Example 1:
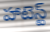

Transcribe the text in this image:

హాటెస్ట్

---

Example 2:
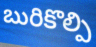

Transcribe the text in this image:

బురికొల్పి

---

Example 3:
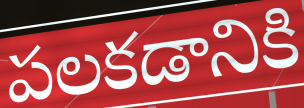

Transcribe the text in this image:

పలకడానికి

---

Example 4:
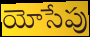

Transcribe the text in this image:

యోసేపు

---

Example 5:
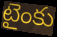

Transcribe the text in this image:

టైంకు